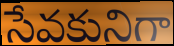
సేవకునిగా